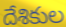
దేశికుల